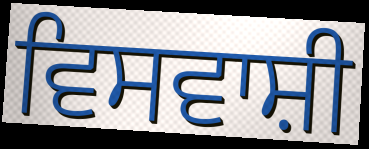
ਵਿਸਵਾਸ਼ੀ